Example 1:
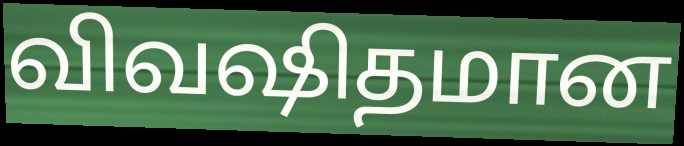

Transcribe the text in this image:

விவஷிதமான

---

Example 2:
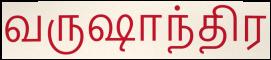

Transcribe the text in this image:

வருஷாந்திர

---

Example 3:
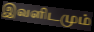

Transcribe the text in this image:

இவளிடமும்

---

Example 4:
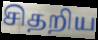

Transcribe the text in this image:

சிதறிய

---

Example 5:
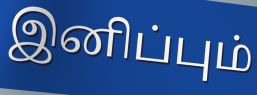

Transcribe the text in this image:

இனிப்பும்